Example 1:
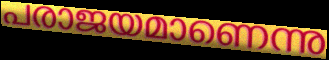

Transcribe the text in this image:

പരാജയമാണെന്നു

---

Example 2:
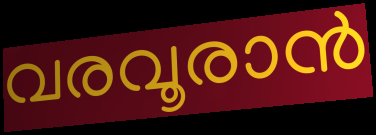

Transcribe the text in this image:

വരവൂരാൻ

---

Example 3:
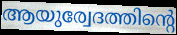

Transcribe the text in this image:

ആയുര്വേദത്തിന്റെ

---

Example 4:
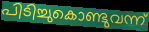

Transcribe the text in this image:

പിടിച്ചുകൊണ്ടുവന്ന്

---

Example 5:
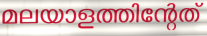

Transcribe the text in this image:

മലയാളത്തിന്റേത്